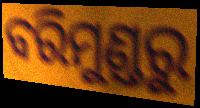
ବରିମୁଣ୍ଡରୁ